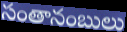
సంతానంబులు